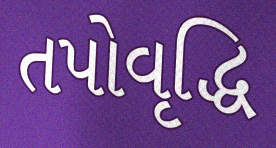
તપોવૃદ્ધિ